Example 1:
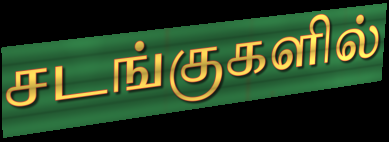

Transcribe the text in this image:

சடங்குகளில்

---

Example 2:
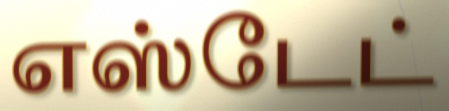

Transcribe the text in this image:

எஸ்டேட்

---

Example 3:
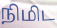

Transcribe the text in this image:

நிமிட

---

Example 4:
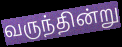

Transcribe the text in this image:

வருந்தின்று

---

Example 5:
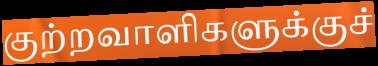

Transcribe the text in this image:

குற்றவாளிகளுக்குச்